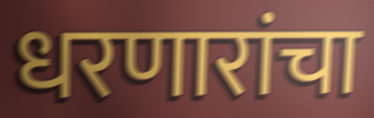
धरणारांचा